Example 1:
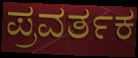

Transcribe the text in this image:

ಪ್ರವರ್ತಕ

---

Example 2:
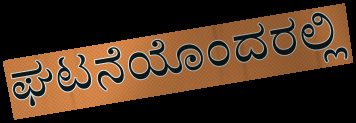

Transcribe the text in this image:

ಘಟನೆಯೊಂದರಲ್ಲಿ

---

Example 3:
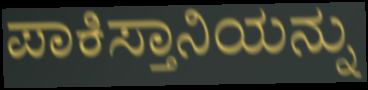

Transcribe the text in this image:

ಪಾಕಿಸ್ತಾನಿಯನ್ನು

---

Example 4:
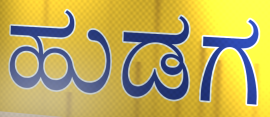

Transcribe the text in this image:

ಹುಡಗ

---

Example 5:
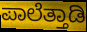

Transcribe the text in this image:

ಪಾಲೆತ್ತಾಡಿ